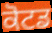
ਕੋਟਡ